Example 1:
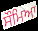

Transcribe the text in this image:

ਸੌਮਿਆ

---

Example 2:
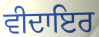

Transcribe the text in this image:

ਵੀਦਾਇਰ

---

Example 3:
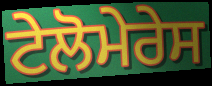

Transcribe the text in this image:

ਟੇਲੋਮੇਰੇਸ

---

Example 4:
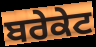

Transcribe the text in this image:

ਬਰੇਕੇਟ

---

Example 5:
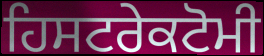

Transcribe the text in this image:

ਹਿਸਟਰੇਕਟੋਮੀ